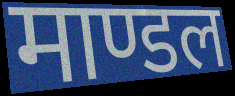
माण्डल